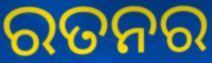
ରତନର